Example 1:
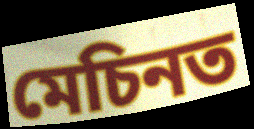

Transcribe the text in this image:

মেচিনত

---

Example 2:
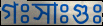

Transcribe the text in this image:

গঃসাঃগুঃ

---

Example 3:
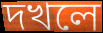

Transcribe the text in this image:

দখলে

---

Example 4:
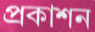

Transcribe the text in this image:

প্ৰকাশন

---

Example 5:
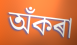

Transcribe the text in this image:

অঁকৰা